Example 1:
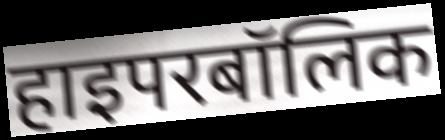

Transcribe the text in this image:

हाइपरबॉलिक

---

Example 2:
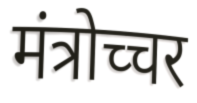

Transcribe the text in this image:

मंत्रोच्चर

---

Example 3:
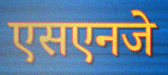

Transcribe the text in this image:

एसएनजे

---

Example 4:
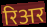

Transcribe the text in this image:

रिअर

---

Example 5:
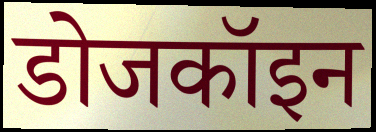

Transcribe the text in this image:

डोजकॉइन